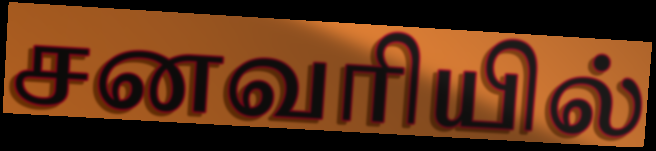
சனவரியில்